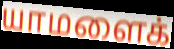
யாமளைக்